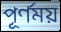
পূর্ণময়